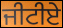
ਜੀਟੀਏ